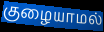
குழையாமல்